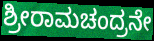
ಶ್ರೀರಾಮಚಂದ್ರನೇ